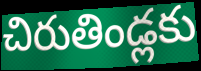
చిరుతిండ్లకు